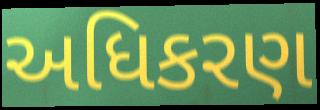
અધિકરણ